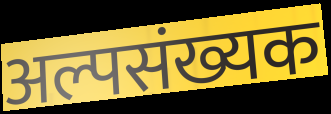
अल्‍पसंख्‍यक